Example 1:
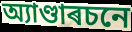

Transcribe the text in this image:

অ্যাণ্ডাৰচনে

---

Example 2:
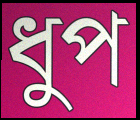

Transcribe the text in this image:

ধুপ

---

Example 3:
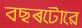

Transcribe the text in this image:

বছৰটোৱে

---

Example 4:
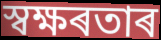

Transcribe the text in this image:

স্বক্ষৰতাৰ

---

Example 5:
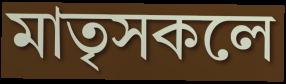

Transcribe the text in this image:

মাতৃসকলে